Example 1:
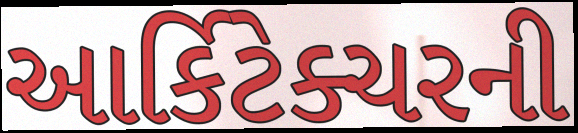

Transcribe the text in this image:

આર્કિટેક્ચરની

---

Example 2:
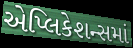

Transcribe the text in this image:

એપ્લિકેશન્સમાં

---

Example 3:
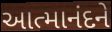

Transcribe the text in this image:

આત્માનંદને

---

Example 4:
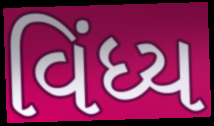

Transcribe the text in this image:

વિંધ્ય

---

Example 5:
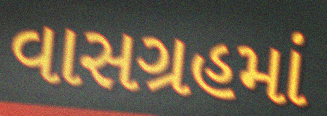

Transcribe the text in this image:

વાસગ્રહમાં